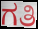
ಗತಿ